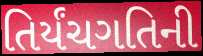
તિર્યંચગતિની